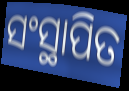
ସଂସ୍ଥାପିତ